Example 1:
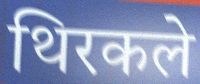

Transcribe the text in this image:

थिरकले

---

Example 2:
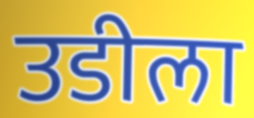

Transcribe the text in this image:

उडीला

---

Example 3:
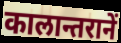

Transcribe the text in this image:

कालान्तरानें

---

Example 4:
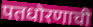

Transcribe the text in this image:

पतधोरणाची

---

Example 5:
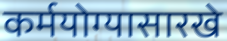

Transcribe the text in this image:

कर्मयोग्यासारखे